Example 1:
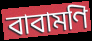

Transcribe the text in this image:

বাবামণি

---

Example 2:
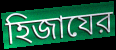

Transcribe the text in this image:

হিজাযের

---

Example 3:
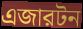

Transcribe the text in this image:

এজারটন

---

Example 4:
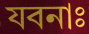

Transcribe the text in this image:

যবনাঃ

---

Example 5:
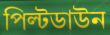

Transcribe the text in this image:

পিল্টডাউন